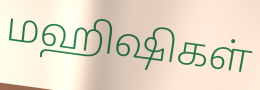
மஹிஷிகள்